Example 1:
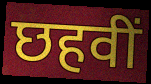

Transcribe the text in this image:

छहवीं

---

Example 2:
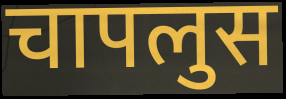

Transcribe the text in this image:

चापलुस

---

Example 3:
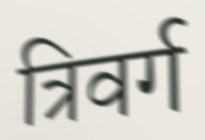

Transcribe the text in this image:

त्रिवर्ग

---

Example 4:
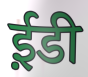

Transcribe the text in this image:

ई़डी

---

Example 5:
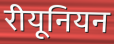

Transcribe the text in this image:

रीयूनियन